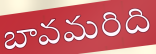
బావమరిది